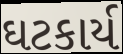
ઘટકાર્ય